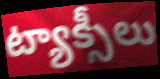
ట్యాక్సీలు